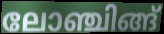
ലോഞ്ചിങ്ങ്